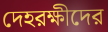
দেহরক্ষীদের